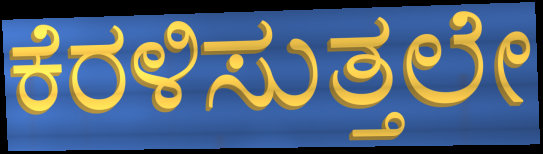
ಕೆರಳಿಸುತ್ತಲೇ